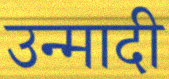
उन्मादी